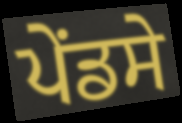
ਪੇਂਡਸੇ